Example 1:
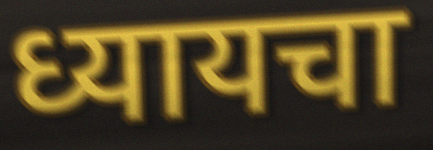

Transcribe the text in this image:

ध्यायचा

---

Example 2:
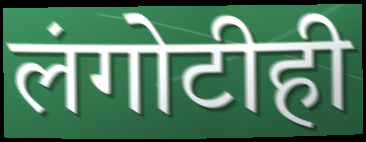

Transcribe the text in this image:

लंगोटीही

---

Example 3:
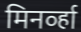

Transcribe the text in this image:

मिनर्व्हा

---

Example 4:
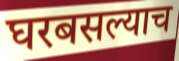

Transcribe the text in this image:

घरबसल्याच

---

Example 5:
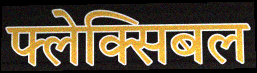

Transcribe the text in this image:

फ्लेक्सिबल